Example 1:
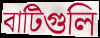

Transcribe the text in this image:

বাটিগুলি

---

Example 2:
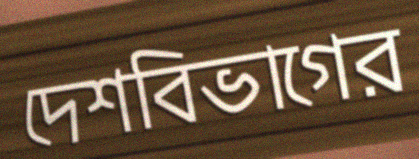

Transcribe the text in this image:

দেশবিভাগের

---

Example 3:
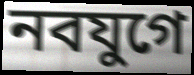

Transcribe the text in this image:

নবযুগে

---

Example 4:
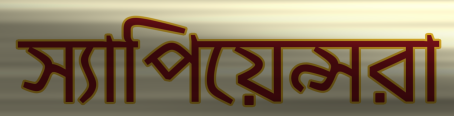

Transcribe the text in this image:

স্যাপিয়েন্সরা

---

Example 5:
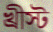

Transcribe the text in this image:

খ্রীস্ট